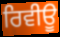
ਰਿਵੀਊ